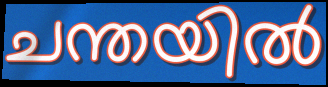
ചന്തയിൽ